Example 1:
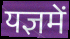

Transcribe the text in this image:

यज्ञमें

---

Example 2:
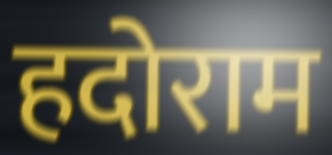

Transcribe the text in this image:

हदोराम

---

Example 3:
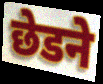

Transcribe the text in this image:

छेडने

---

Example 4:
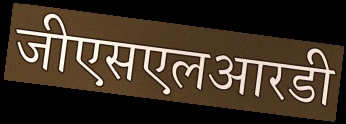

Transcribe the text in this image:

जीएसएलआरडी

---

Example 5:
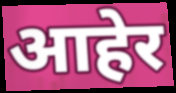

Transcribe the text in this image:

आहेर